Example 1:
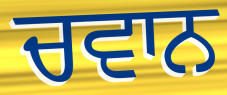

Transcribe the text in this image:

ਚਵਾਨ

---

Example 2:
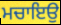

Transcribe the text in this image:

ਮਚਾਇਉ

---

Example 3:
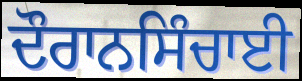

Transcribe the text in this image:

ਦੌਰਾਨਸਿੰਚਾਈ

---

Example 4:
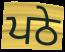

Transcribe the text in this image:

ਪਠੇ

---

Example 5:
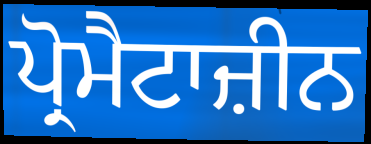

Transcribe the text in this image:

ਪ੍ਰੋਮੈਟਾਜ਼ੀਨ